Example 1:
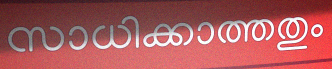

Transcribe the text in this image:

സാധിക്കാത്തതും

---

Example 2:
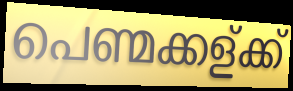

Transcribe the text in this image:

പെണ്മക്കള്ക്ക്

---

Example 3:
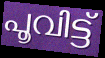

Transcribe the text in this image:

പൂവിട്ട്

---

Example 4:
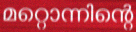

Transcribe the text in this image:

മറ്റൊന്നിന്റെ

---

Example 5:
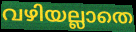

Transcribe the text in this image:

വഴിയല്ലാതെ